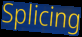
Splicing